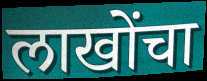
लाखोंचा